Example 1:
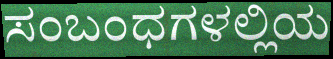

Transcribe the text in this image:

ಸಂಬಂಧಗಳಲ್ಲಿಯ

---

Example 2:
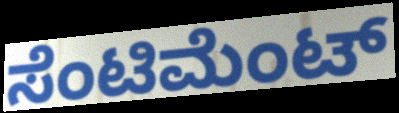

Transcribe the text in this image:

ಸೆಂಟಿಮೆಂಟ್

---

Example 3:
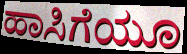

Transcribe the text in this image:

ಹಾಸಿಗೆಯೂ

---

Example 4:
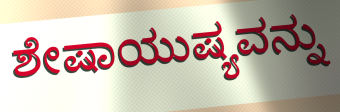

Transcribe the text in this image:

ಶೇಷಾಯುಷ್ಯವನ್ನು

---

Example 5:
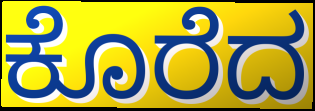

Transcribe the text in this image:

ಕೊರೆದ